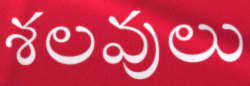
శలవులు